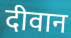
दीवान